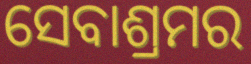
ସେବାଶ୍ରମର